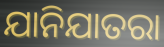
ଯାନିଯାତରା